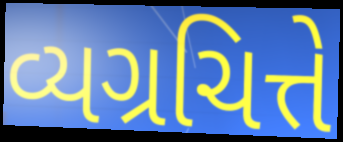
વ્યગ્રચિત્તે